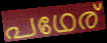
പഥേര്